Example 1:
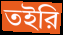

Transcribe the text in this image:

তইরি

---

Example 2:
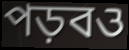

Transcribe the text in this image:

পড়বও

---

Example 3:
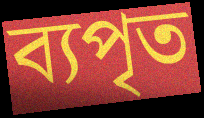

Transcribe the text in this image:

ব্যপৃত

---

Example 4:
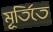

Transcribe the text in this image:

মূর্তিতে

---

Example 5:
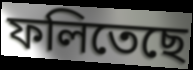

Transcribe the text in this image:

ফলিতেছে